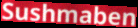
Sushmaben